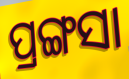
ପ୍ରଙ୍ଗସା